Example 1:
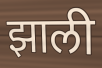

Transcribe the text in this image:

झाली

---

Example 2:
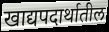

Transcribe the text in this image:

खाद्यपदार्थातील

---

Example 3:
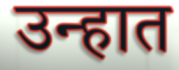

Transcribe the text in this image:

उन्हात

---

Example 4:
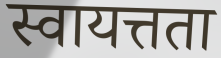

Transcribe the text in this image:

स्वायत्तता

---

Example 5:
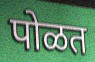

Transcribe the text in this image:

पोळत